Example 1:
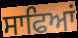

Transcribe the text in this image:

ਸਾਫਿਆਂ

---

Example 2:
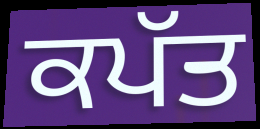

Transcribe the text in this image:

ਕਪੱਤ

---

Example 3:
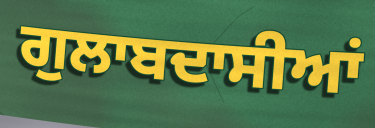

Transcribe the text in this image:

ਗੁਲਾਬਦਾਸੀਆਂ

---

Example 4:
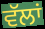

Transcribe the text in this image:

ਵੱਲਾਂ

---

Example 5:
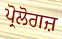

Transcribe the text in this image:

ਪ੍ਰੋਲੋਗਜ਼